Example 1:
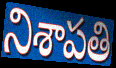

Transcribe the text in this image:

నిశాపతి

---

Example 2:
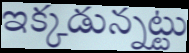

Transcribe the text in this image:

ఇక్కడున్నట్టు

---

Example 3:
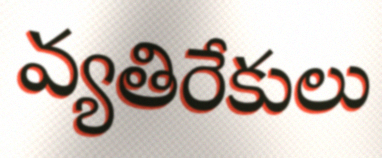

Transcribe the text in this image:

వ్యతిరేకులు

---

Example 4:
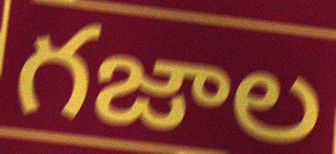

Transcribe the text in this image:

గజాల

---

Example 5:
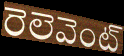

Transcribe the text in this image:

రెలెవెంట్